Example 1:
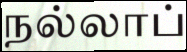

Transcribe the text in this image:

நல்லாப்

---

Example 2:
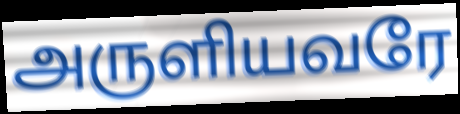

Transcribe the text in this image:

அருளியவரே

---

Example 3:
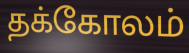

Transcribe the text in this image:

தக்கோலம்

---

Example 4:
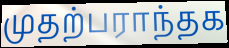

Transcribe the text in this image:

முதற்பராந்தக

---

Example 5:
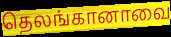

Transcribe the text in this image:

தெலங்கானாவை